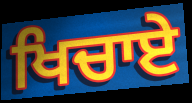
ਖਿਚਾਏ